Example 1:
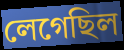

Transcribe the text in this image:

লেগেছিল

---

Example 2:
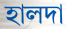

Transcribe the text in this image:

হালদা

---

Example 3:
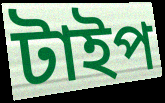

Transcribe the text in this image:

টাইপ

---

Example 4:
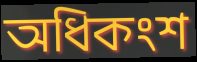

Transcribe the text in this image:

অধিকংশ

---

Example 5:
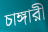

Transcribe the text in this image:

চাঙ্গারী